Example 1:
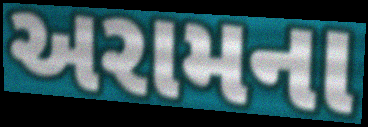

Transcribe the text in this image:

અરામના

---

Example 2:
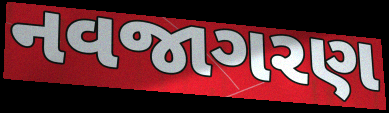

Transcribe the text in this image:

નવજાગરણ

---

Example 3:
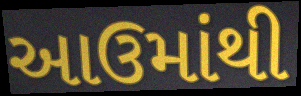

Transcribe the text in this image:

આઉમાંથી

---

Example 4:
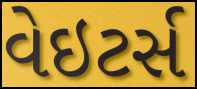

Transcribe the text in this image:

વેઇટર્સ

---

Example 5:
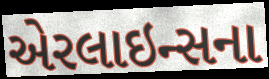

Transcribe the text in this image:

એરલાઇન્સના